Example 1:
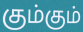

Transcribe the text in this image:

கும்கும்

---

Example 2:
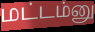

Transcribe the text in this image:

மட்டம்னு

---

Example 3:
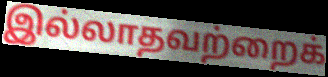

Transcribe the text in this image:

இல்லாதவற்றைக்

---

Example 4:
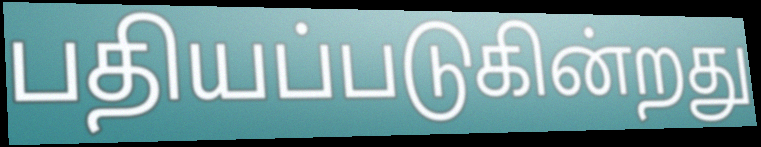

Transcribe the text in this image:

பதியப்படுகின்றது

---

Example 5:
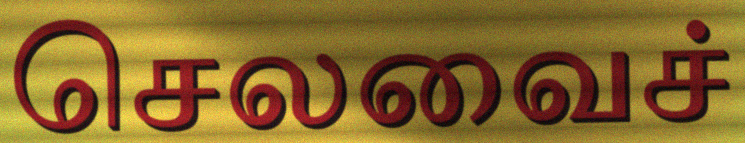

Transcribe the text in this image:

செலவைச்